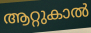
ആറ്റുകാൽ